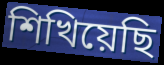
শিখিয়েছি